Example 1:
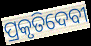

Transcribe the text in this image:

ପ୍ରକୃତିଦେବୀ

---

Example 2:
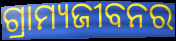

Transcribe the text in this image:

ଗ୍ରାମ୍ୟଜୀବନର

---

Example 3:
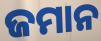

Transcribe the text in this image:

ଜମାନ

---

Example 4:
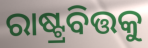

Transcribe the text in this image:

ରାଷ୍ଟ୍ରବିତ୍ତକୁ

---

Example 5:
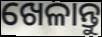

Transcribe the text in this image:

ଖେଳାନ୍ତୁ